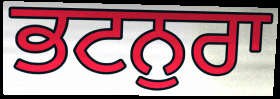
ਭਟਨੁਰਾ